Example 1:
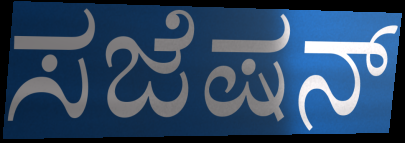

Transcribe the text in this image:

ಸಜೆಷನ್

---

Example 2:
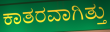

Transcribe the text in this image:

ಕಾತರವಾಗಿತ್ತು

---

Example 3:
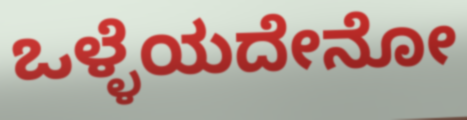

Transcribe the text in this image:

ಒಳ್ಳೆಯದೇನೋ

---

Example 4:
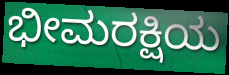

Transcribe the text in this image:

ಭೀಮರಕ್ಷಿಯ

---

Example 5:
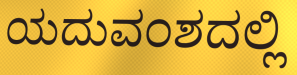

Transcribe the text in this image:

ಯದುವಂಶದಲ್ಲಿ